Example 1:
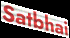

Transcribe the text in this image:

Satbhai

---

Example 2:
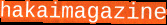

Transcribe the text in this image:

hakaimagazine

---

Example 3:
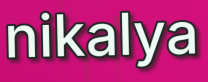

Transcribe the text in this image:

nikalya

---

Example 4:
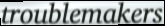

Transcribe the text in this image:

troublemakers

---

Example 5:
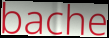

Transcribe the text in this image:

bache